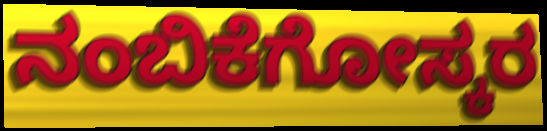
ನಂಬಿಕೆಗೋಸ್ಕರ